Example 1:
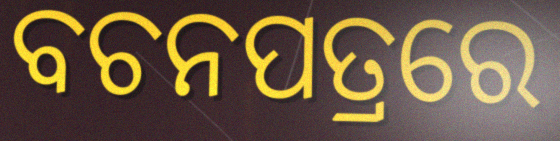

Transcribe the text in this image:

ବଚନପତ୍ରରେ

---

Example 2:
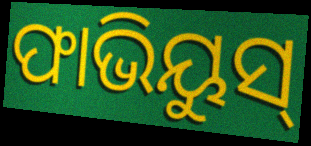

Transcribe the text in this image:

ଫାଭିୟୁସ୍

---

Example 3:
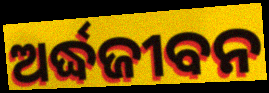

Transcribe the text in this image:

ଅର୍ଦ୍ଧଜୀବନ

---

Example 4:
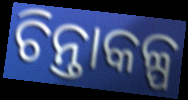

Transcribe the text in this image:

ଚିନ୍ତାକଳ୍ପ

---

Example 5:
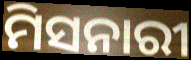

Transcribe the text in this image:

ମିସନାରୀ